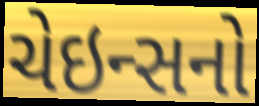
ચેઇન્સનો